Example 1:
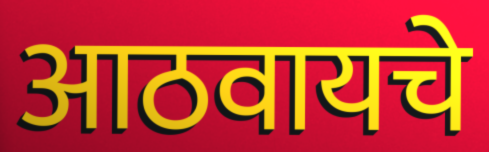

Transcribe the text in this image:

आठवायचे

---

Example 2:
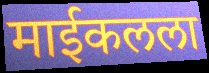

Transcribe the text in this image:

माईकलला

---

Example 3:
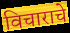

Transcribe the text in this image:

विचाराचे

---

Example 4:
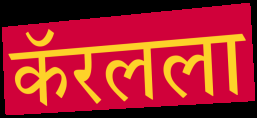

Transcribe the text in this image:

कॅरलला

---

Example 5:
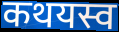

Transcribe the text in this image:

कथयस्व